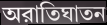
অরাতিঘাতন